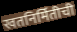
खतनिर्मितीची